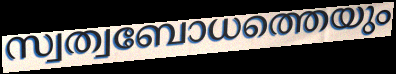
സ്വത്വബോധത്തെയും